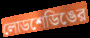
লোডশেডিঙের